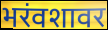
भरंवशावर